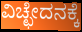
ವಿಚ್ಛೇದನಕ್ಕೆ